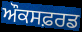
ਔਕਸਫ਼ਰਡ